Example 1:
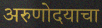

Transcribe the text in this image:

अरुणोदयाचा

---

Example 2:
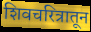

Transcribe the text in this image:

शिवचरित्रातून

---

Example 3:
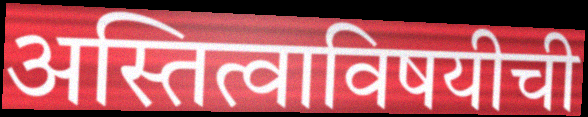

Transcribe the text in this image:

अस्तित्वाविषयीची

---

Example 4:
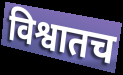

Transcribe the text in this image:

विश्वातच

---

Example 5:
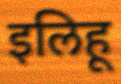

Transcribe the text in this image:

इलिहू